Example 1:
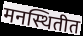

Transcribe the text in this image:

मनस्थितीत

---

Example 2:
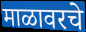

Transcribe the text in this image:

माळावरचे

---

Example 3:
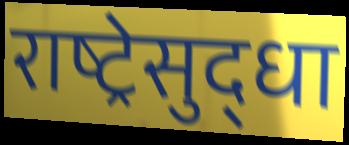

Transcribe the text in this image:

राष्ट्रेसुद्धा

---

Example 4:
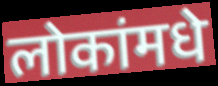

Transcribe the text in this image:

लोकांमधे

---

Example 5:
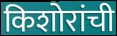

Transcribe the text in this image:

किशोरांची